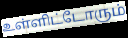
உள்ளிட்டோரும்